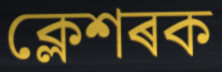
ক্লেশৰক